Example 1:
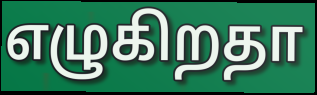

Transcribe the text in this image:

எழுகிறதா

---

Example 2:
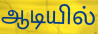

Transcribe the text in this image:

ஆடியில்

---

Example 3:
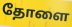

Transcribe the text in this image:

தோளை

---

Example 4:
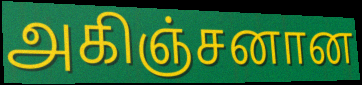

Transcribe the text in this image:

அகிஞ்சனான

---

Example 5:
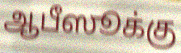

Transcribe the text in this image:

ஆபீஸூக்கு